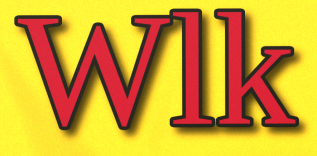
Wlk